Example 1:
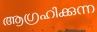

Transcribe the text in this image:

ആഗ്രഹിക്കുന്ന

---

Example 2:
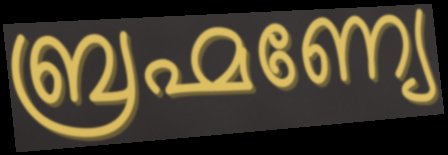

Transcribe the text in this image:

ബ്രഹ്മണ്യേ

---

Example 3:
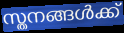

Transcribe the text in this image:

സ്തനങ്ങൾക്ക്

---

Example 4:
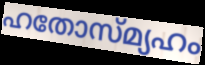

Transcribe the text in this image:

ഹതോസ്മ്യഹം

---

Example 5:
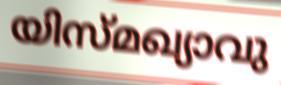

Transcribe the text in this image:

യിസ്മഖ്യാവു